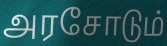
அரசோடும்